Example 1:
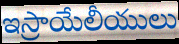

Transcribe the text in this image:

ఇస్రాయేలీయులు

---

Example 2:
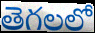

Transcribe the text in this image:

తెగలలో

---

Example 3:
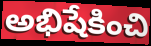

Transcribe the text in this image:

అభిషేకించి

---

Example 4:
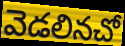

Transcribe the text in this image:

వెడలినచో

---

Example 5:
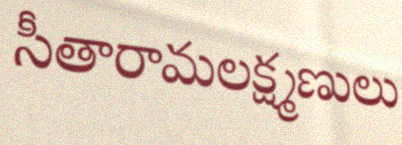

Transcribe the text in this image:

సీతారామలక్ష్మణులు